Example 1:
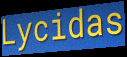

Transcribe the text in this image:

Lycidas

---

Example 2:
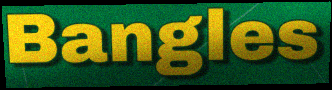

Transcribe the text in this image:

Bangles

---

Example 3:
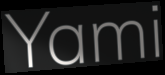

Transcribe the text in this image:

Yami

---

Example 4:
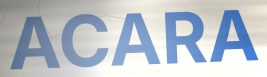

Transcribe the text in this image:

ACARA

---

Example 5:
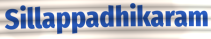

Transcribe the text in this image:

Sillappadhikaram